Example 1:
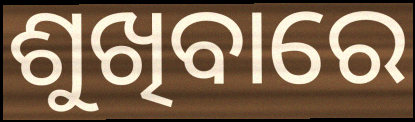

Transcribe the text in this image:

ଶୁଖିବାରେ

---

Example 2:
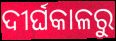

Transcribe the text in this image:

ଦୀର୍ଘକାଳରୁ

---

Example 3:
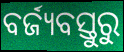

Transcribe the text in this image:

ବର୍ଜ୍ୟବସ୍ତୁରୁ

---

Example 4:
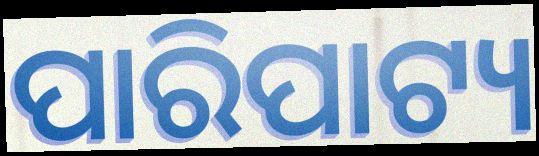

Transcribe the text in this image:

ପାରିପାଟ୍ୟ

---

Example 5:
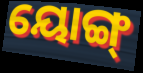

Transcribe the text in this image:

ୟୋଙ୍ଗ୍